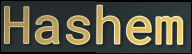
Hashem